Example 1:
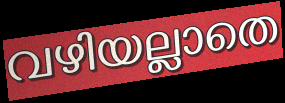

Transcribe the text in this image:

വഴിയല്ലാതെ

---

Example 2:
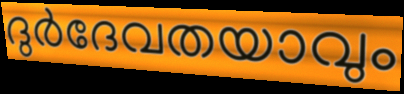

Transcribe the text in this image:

ദുർദേവതയാവും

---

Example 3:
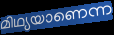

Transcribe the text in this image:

മിഥ്യയാണെന്ന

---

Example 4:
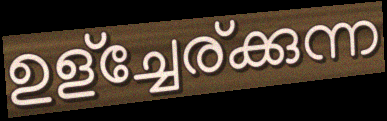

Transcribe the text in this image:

ഉള്ച്ചേര്ക്കുന്ന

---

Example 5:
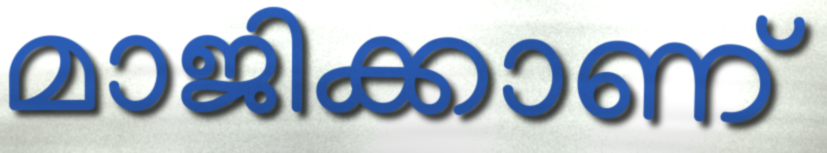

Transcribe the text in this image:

മാജിക്കാണ്